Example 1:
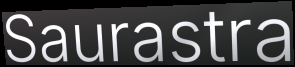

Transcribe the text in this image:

Saurastra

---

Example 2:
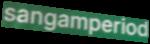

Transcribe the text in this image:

sangamperiod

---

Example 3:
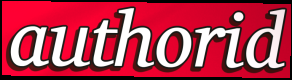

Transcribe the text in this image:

authorid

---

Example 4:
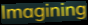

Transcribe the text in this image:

Imagining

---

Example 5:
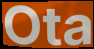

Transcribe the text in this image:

Ota